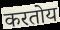
करतोय